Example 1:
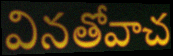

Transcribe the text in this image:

వినతోవాచ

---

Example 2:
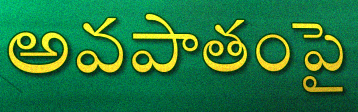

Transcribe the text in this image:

అవపాతంపై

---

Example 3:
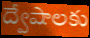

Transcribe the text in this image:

ద్వేషాలకు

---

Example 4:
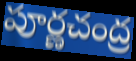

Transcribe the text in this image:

పూర్ణచంద్ర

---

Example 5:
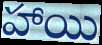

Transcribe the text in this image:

హాయి